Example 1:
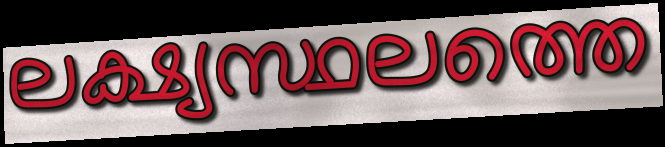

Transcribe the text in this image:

ലക്ഷ്യസ്ഥലത്തെ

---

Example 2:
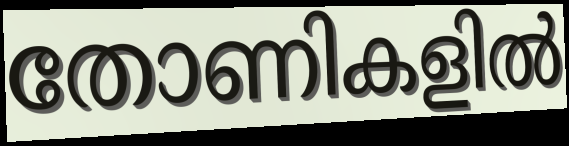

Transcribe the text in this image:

തോണികളിൽ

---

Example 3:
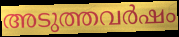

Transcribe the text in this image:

അടുത്തവർഷം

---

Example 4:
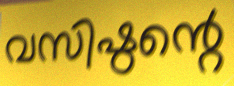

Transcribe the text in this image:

വസിഷ്ഠന്റെ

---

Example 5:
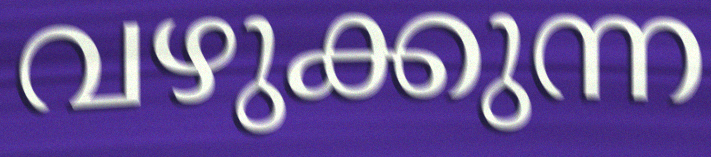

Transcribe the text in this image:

വഴുക്കുന്ന